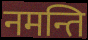
नमन्ति